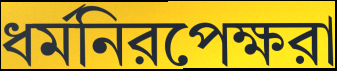
ধর্মনিরপেক্ষরা